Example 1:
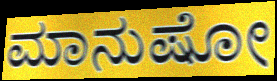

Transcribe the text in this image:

ಮಾನುಷೋ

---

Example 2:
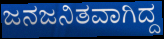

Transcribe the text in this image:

ಜನಜನಿತವಾಗಿದ್ದ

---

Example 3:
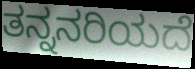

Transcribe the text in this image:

ತನ್ನನರಿಯದೆ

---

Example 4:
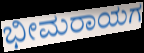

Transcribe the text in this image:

ಭೀಮರಾಯಗ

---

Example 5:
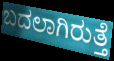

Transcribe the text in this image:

ಬದಲಾಗಿರುತ್ತೆ